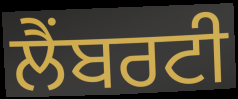
ਲੈਂਬਰਟੀ